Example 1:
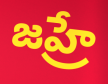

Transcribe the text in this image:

జహ్రే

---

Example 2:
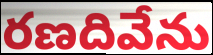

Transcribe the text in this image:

రణదివేను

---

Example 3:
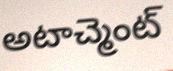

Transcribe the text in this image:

అటాచ్మెంట్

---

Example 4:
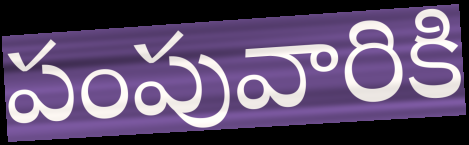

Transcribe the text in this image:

పంపువారికి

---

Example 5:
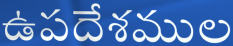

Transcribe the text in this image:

ఉపదేశముల